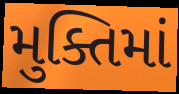
મુક્તિમાં